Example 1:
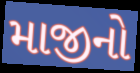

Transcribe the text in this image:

માજીનો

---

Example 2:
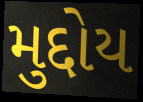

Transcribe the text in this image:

મુદ્દોય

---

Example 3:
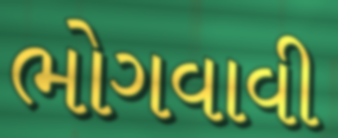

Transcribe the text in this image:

ભોગવાવી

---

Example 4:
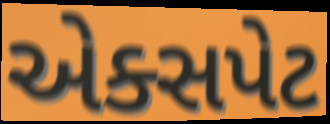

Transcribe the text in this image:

એક્સપેટ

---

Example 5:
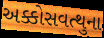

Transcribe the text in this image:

અક્કોસવત્થુના